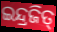
ଇନ୍ଦ୍ରଜିତ୍